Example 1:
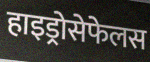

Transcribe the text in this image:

हाइड्रोसेफेलस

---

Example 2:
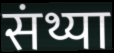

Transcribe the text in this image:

संथ्या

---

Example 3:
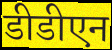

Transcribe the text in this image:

डीडीएन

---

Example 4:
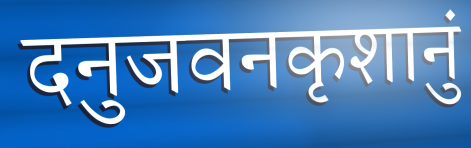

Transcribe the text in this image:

दनुजवनकृशानुं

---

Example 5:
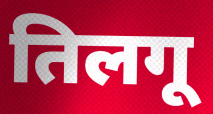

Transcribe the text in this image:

तिलगू